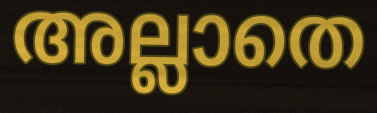
അല്ലാതെ